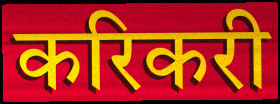
करिकरी